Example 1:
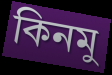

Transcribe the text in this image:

কিনমু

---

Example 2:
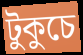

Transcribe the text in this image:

টুকুচে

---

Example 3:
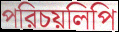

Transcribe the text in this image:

পরিচয়লিপি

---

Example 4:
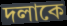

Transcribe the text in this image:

দলাকে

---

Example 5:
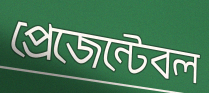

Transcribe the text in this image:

প্রেজেন্টেবল